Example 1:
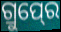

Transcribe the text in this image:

ଗ୍ରୁପ୍‍ରେ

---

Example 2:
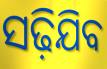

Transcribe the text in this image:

ସଢ଼ିଯିବ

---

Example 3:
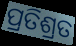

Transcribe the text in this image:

ପ୍ରତିଶ୍ରତ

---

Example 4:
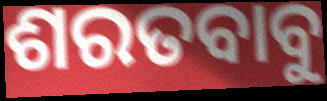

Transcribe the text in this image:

ଶରତବାବୁ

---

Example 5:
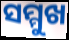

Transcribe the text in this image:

ସମ୍ମୁଖ